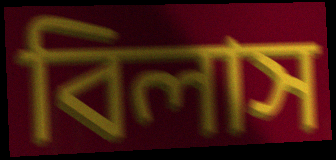
বিলাস